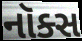
નૉક્સ